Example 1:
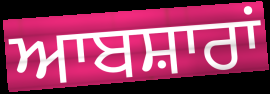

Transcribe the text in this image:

ਆਬਸ਼ਾਰਾਂ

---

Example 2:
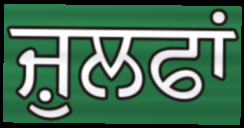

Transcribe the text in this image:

ਜ਼ੁਲਫਾਂ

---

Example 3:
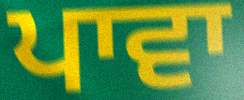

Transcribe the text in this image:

ਪਾਵਾ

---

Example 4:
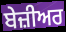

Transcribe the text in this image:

ਬੇਜ਼ੀਅਰ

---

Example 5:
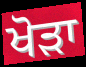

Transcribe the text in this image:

ਖੋੜਾ